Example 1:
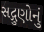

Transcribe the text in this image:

સદ્ગુણોનું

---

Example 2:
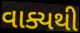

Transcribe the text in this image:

વાક્યથી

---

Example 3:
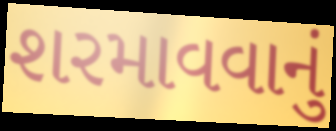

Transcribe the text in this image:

શરમાવવાનું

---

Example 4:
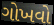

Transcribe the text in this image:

ગોખવો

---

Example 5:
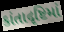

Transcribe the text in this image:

કાંતાદૃષ્ટિમાં